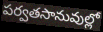
పర్వతసానువుల్లో